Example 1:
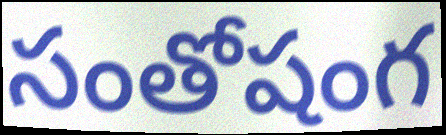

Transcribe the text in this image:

సంతోషంగ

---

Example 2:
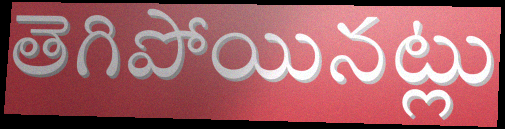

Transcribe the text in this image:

తెగిపోయినట్లు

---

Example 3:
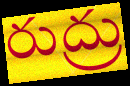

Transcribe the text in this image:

రుద్రు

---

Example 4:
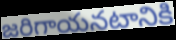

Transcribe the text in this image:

జరిగాయనటానికి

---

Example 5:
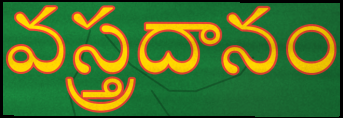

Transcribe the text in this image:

వస్త్రదానం